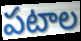
పటాల